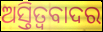
ଅସ୍ତିତ୍ବବାଦର